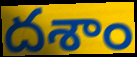
దశాం